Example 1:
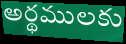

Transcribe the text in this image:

అర్థములకు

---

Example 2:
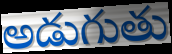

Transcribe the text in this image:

అడుగుతు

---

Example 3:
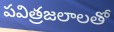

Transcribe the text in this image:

పవిత్రజలాలతో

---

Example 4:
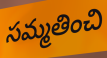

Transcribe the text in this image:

సమ్మతించి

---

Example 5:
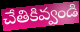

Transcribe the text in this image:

చేతికివ్వండి